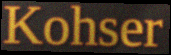
Kohser